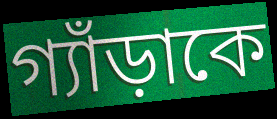
গ্যাঁড়াকে